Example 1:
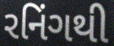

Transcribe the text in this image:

રનિંગથી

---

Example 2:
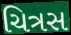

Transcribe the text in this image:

ચિત્રસ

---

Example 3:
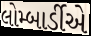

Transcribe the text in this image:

લોમ્બાર્ડીએ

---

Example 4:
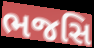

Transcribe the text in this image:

ભજસિ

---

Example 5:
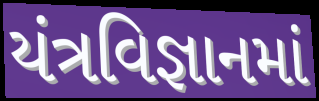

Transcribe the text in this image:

યંત્રવિજ્ઞાનમાં